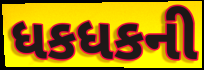
ધકધકની